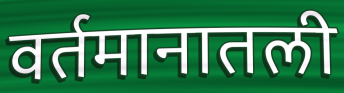
वर्तमानातली